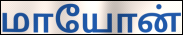
மாயோன்